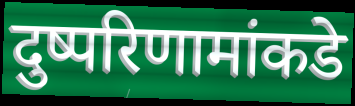
दुष्परिणामांकडे